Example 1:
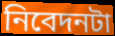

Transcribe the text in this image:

নিবেদনটা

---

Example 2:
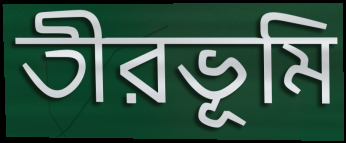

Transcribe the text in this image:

তীরভূমি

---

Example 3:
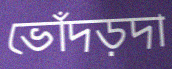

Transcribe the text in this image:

ভোঁদড়দা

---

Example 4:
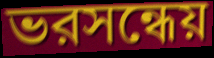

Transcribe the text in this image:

ভরসন্ধেয়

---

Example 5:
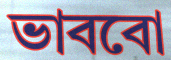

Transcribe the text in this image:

ভাববো